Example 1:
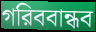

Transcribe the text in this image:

গরিববান্ধব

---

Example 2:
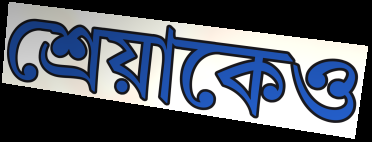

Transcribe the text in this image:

শ্রেয়াকেও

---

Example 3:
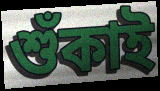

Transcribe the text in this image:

শুঁকাই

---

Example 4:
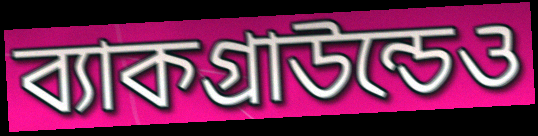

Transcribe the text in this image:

ব্যাকগ্রাউন্ডেও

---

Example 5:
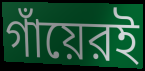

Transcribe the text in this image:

গাঁয়েরই